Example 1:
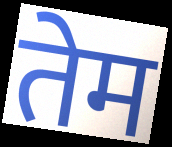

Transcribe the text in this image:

तेम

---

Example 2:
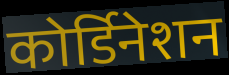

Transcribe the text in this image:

कोर्डिनेशन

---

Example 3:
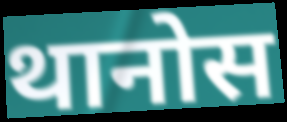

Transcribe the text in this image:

थानोस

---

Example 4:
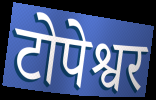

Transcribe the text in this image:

टोपेश्वर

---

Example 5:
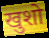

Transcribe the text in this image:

खुशो